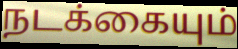
நடக்கையும்